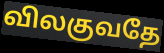
விலகுவதே